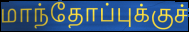
மாந்தோப்புக்குச்